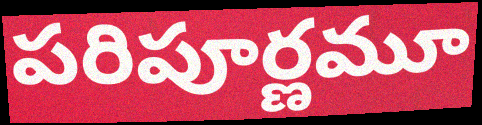
పరిపూర్ణమూ